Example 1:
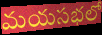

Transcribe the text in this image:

మయసభలో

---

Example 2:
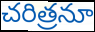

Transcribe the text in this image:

చరిత్రనూ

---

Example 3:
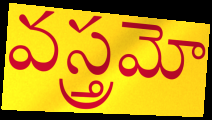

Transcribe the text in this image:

వస్త్రమో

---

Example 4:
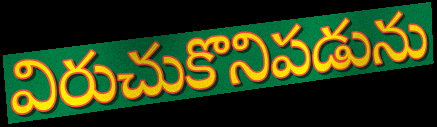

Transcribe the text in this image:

విరుచుకొనిపడును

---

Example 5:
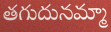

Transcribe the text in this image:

తగుదునమ్మా